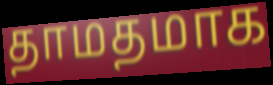
தாமதமாக